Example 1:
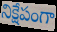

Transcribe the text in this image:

నిక్షేపంగా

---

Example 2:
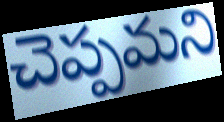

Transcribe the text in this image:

చెప్పమని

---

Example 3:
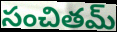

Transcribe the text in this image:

సంచితమ్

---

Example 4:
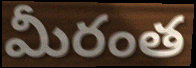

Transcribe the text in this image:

మీరంత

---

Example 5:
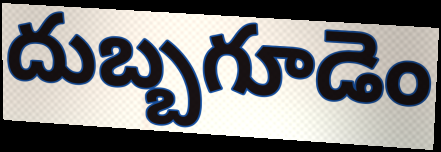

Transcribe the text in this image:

దుబ్బగూడెం